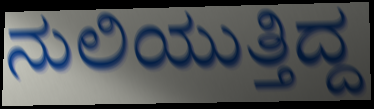
ನುಲಿಯುತ್ತಿದ್ದ